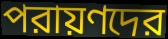
পরায়ণদের